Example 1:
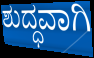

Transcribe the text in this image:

ಶುದ್ಧವಾಗಿ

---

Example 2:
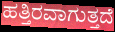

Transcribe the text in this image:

ಹತ್ತಿರವಾಗುತ್ತದೆ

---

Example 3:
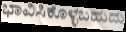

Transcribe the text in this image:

ಭಾವಿಸಿಕೊಳ್ಳಬಹುದು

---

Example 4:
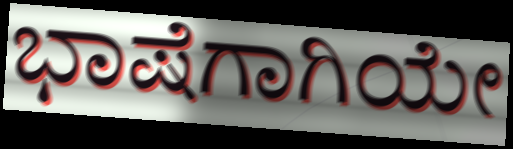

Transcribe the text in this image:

ಭಾಷೆಗಾಗಿಯೇ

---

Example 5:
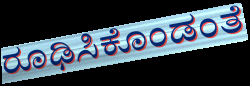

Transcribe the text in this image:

ರೂಢಿಸಿಕೊಂಡಂತೆ